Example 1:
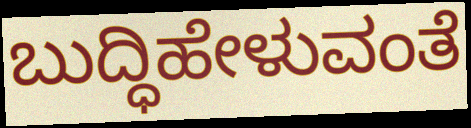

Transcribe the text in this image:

ಬುದ್ಧಿಹೇಳುವಂತೆ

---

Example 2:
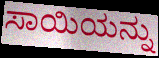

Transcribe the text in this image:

ಸಾಯಿಯನ್ನು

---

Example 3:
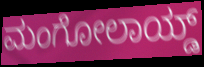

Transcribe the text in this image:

ಮಂಗೋಲಾಯ್ಡ್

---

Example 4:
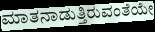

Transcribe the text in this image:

ಮಾತನಾಡುತ್ತಿರುವಂತೆಯೇ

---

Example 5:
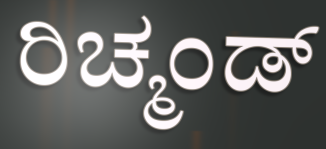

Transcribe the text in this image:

ರಿಚ್ಮಂಡ್